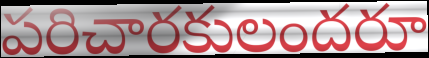
పరిచారకులందరూ